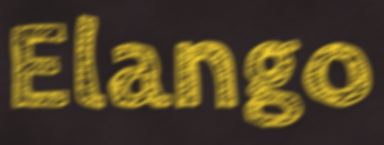
Elango